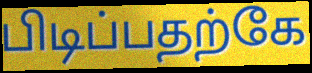
பிடிப்பதற்கே